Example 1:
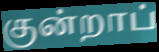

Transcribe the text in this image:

குன்றாப்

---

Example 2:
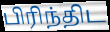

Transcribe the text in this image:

பிரிந்திட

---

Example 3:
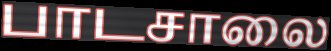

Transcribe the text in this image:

பாடசாலை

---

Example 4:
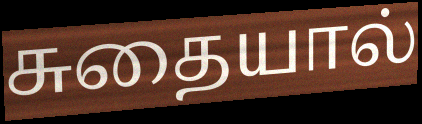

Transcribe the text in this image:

சுதையால்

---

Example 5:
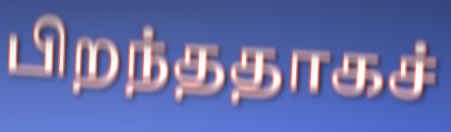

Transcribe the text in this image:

பிறந்ததாகச்